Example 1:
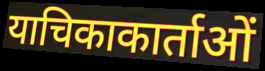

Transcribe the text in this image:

याचिकाकार्ताओं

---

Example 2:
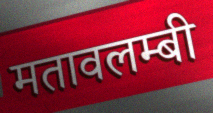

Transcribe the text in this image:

मतावलम्बी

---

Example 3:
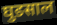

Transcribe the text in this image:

घुडसाल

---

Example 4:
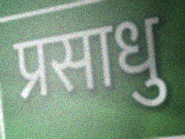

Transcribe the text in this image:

प्रसाधु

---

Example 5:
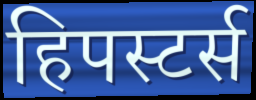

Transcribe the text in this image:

हिपस्टर्स